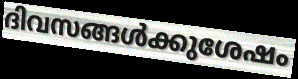
ദിവസങ്ങൾക്കുശേഷം